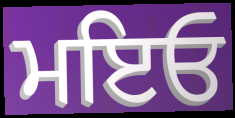
ਮਇਓ